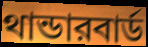
থান্ডারবার্ড